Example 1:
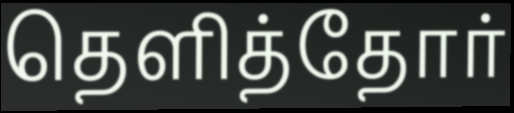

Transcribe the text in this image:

தெளித்தோர்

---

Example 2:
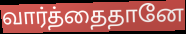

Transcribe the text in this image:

வார்த்தைதானே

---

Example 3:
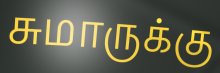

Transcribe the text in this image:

சுமாருக்கு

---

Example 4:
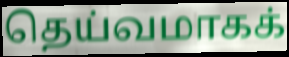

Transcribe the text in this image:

தெய்வமாகக்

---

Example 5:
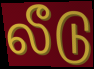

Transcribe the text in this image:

லீடு